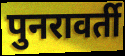
पुनरावर्ती